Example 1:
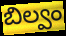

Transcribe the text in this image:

బిల్వం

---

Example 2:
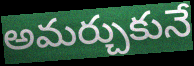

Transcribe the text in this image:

అమర్చుకునే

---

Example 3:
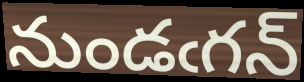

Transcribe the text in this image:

నుండఁగన్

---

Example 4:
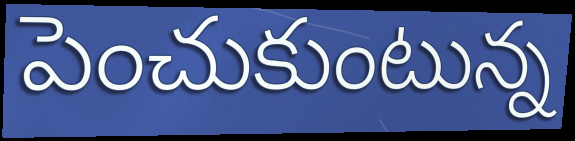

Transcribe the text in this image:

పెంచుకుంటున్న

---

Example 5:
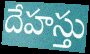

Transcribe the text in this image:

దేహస్తు